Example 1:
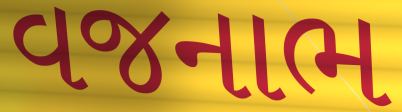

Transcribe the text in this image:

વજનાભ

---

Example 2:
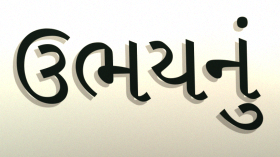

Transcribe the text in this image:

ઉભયનું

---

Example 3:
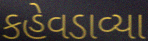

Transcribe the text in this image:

કહેવડાવ્યા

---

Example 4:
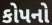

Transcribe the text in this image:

કોપનો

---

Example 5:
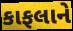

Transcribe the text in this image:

કાફલાને